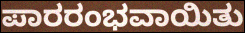
ಪಾರರಂಭವಾಯಿತು